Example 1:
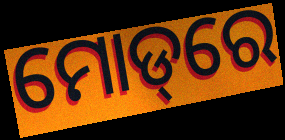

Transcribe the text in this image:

ମୋଡ୍‌ରେ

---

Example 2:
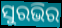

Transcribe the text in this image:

ସୁରଭିର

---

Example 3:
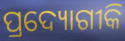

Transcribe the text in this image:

ପ୍ରଦ୍ୟୋଗୀକି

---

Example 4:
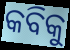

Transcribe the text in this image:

କବିକୁ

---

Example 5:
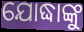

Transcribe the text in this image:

ଯୋଦ୍ଧାଙ୍କୁ